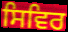
ਸਿਵਿਰ